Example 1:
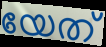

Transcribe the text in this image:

യേത്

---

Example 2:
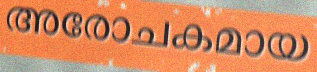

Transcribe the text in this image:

അരോചകമായ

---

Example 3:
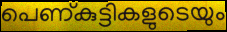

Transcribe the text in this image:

പെണ്കുട്ടികളുടെയും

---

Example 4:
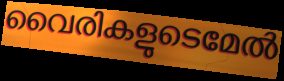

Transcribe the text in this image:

വൈരികളുടെമേൽ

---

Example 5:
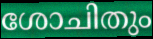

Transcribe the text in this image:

ശോചിതും